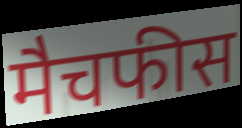
मैचफीस